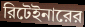
রিটেইনারের